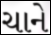
ચાને